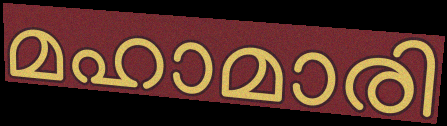
മഹാമാരി